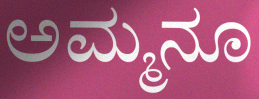
ಅಮ್ಮನೂ